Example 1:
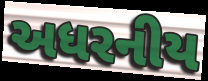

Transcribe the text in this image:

અધરનીય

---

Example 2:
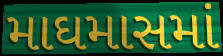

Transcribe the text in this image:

માઘમાસમાં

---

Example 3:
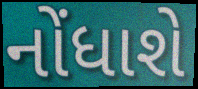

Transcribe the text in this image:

નોંધાશે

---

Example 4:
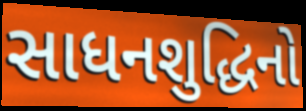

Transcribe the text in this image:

સાધનશુદ્ધિનો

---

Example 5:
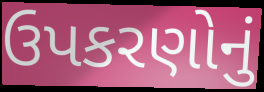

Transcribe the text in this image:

ઉપકરણોનું